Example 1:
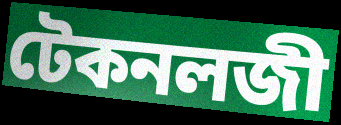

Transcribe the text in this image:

টেকনলজী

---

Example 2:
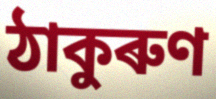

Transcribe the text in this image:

ঠাকুৰুণ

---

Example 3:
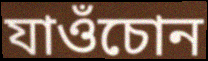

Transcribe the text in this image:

যাওঁচোন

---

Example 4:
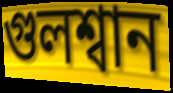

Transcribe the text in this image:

গুলশ্বান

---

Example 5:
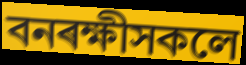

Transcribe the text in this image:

বনৰক্ষীসকলে